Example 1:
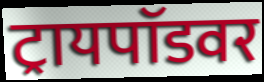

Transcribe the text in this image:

ट्रायपॉडवर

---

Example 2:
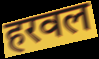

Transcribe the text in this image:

हरवल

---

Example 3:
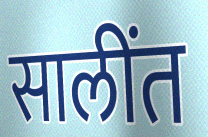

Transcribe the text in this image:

सालींत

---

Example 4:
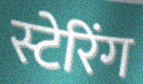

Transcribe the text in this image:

स्टेरिंग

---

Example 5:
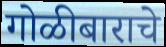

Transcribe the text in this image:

गोळीबाराचे